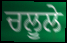
ਚਲੂਲੇ